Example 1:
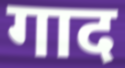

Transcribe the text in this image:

गाद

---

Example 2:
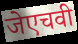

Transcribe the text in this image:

जेएचवी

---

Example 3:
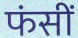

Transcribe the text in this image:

फंसीं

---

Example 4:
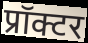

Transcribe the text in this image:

प्रॉक्टर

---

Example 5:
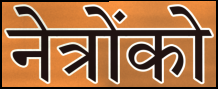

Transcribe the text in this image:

नेत्रोंको